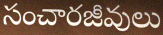
సంచారజీవులు